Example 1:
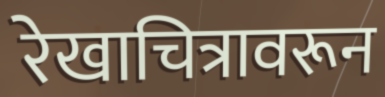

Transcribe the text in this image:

रेखाचित्रावरून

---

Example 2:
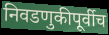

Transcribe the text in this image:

निवडणुकीपूर्वीच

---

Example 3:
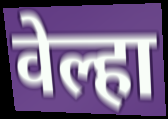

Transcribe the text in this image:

वेल्हा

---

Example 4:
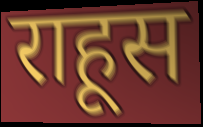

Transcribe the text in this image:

राहूस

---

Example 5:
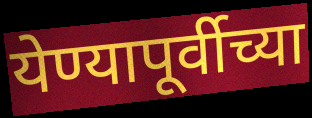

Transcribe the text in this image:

येण्यापूर्वीच्या